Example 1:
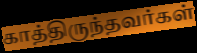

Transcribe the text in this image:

காத்திருந்தவர்கள்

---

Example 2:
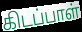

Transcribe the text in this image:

கிடப்பாள்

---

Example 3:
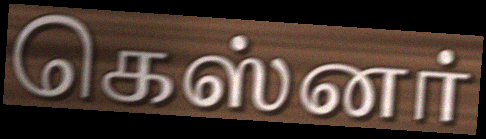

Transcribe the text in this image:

கெஸ்னர்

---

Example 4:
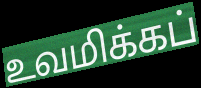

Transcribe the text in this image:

உவமிக்கப்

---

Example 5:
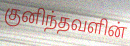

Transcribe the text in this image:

குனிந்தவளின்